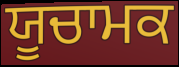
ਯੂਚਾਮਕ